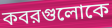
কবরগুলোকে